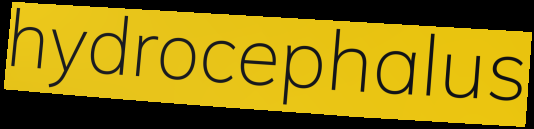
hydrocephalus